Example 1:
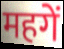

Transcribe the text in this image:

महगें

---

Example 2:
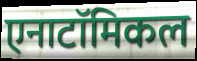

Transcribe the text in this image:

एनाटॉमिकल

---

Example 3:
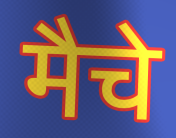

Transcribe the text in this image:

मैचे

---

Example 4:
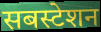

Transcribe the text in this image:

सबस्टेशन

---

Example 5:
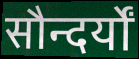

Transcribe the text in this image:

सौन्दर्यों